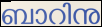
ബാറിനു